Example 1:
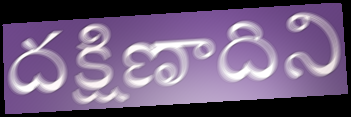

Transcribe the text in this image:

దక్షిణాదిని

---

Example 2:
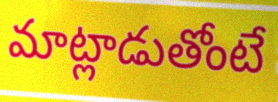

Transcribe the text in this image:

మాట్లాడుతోంటే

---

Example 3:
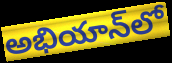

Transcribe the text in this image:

అభియాన్‌లో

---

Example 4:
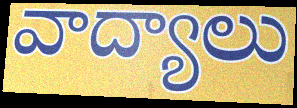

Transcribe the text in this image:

వాద్యాలు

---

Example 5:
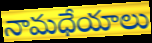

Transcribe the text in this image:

నామధేయాలు